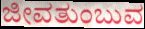
ಜೀವತುಂಬುವ